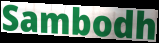
Sambodh